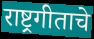
राष्ट्रगीताचे